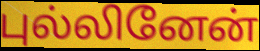
புல்லினேன்